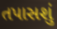
તપાસશું